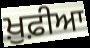
ਖ਼ੁਫ਼ੀਆ